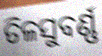
ତିଳସୁବର୍ଣ୍ଣ